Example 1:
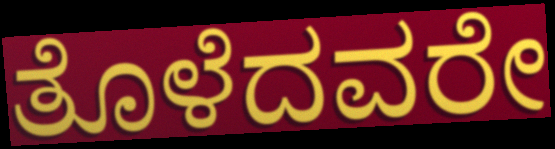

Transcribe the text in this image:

ತೊಳೆದವರೇ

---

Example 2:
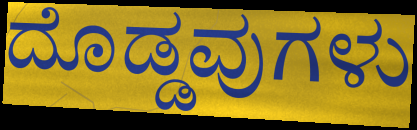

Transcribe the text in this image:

ದೊಡ್ಡವುಗಳು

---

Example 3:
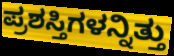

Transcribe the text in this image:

ಪ್ರಶಸ್ತಿಗಳನ್ನಿತ್ತು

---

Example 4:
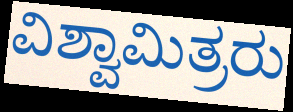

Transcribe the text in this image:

ವಿಶ್ವಾಮಿತ್ರರು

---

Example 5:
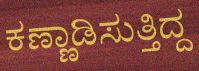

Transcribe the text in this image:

ಕಣ್ಣಾಡಿಸುತ್ತಿದ್ದ